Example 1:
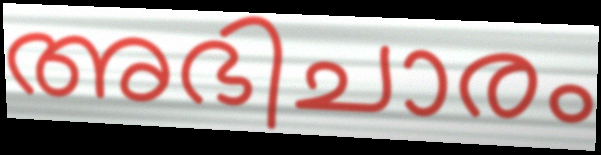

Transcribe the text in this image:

അഭിചാരം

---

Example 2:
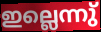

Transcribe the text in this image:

ഇല്ലെന്നു്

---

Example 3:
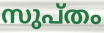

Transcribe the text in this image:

സുപ്തം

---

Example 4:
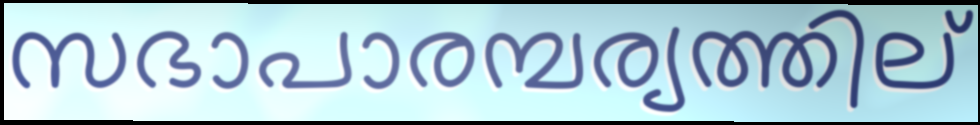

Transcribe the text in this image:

സഭാപാരമ്പര്യത്തില്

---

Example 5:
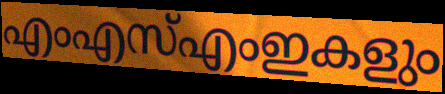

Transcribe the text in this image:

എംഎസ്എംഇകളും